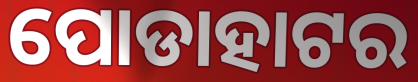
ପୋଡାହାଟର